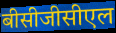
बीसीजीसीएल